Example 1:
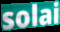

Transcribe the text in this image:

solai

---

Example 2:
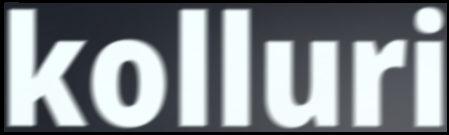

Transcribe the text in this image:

kolluri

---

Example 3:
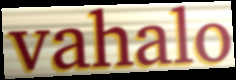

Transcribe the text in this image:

vahalo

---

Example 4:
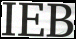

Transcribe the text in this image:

IEB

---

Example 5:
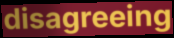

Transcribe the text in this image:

disagreeing